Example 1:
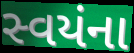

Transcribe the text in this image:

સ્વયંના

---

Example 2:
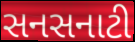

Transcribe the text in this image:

સનસનાટી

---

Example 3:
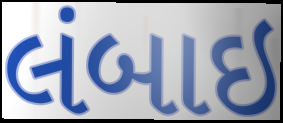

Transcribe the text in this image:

લંબાઇ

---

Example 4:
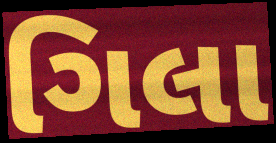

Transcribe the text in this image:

ગિલા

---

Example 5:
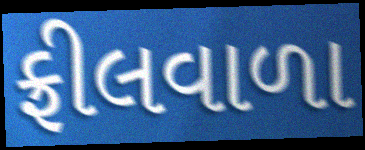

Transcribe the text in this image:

ફ્રીલવાળા